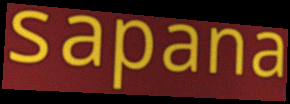
sapana